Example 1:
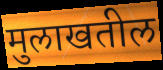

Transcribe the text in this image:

मुलाखतील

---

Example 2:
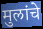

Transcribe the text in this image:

मुलांचे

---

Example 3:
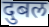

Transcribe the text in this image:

दुबल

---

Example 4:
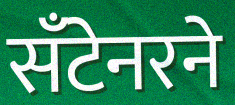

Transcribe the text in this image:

सँटेनरने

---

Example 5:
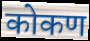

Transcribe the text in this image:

कोकण